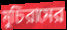
মুচিরামের